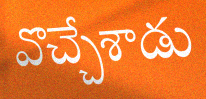
వొచ్చేశాడు